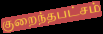
குறைந்தபட்சம்